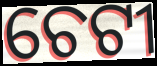
ଚେଟୀ